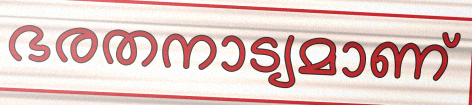
ഭരതനാട്യമാണ്